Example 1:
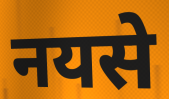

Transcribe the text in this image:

नयसे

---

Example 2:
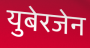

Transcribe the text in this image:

युबेरजेन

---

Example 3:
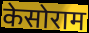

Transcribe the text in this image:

केसोराम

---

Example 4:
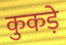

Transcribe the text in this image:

कुकड़े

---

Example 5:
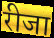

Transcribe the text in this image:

रीजा